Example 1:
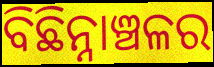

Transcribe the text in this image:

ବିଛିନ୍ନାଞ୍ଚଳର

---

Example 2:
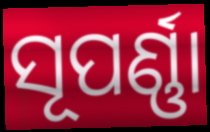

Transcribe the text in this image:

ସୂପର୍ଣ୍ଣା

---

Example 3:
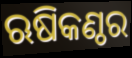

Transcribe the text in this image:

ଋଷିକଣ୍ଠର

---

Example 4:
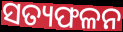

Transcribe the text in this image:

ସତ୍ୟଫଳନ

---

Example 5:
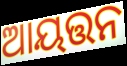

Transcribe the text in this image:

ଆୟତ୍ତନ